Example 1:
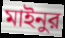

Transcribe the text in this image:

মাইনুর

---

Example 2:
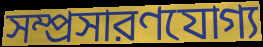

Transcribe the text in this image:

সম্প্রসারণযোগ্য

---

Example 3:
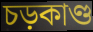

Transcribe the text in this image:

চড়কাণ্ড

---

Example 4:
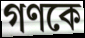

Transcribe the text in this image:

গণকে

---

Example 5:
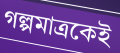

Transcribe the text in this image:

গল্পমাত্রকেই